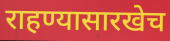
राहण्यासारखेच